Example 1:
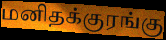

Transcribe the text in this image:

மனிதக்குரங்கு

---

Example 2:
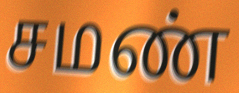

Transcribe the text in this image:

சமண்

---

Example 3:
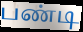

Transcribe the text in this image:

பண்டி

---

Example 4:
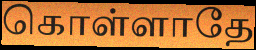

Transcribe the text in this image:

கொள்ளாதே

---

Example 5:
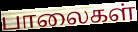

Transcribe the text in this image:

பாலைகள்